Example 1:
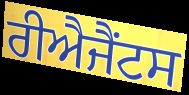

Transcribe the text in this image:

ਰੀਐਜੈਂਟਸ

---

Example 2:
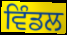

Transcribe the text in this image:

ਵਿੰਡਲ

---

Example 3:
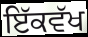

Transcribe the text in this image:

ਇੱਕਵੱਖ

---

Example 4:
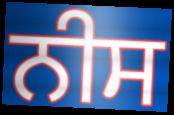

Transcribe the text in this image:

ਨੀਸ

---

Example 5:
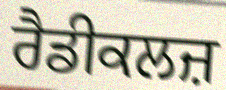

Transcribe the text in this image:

ਰੈਡੀਕਲਜ਼